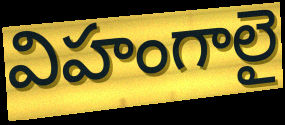
విహంగాలై